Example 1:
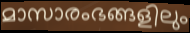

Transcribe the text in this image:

മാസാരംഭങ്ങളിലും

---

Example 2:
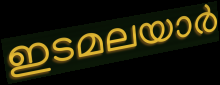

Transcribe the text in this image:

ഇടമലയാർ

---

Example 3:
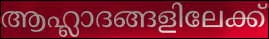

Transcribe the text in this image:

ആഹ്ലാദങ്ങളിലേക്ക്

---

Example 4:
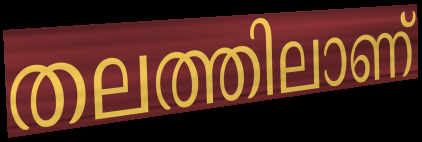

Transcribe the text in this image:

തലത്തിലാണ്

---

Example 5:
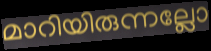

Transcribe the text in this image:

മാറിയിരുന്നല്ലോ